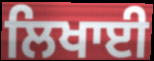
ਲਿਖਾਈ